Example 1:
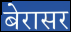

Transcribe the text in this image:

बेरासर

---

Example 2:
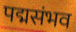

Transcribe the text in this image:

पद्मसंभव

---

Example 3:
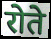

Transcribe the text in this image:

रोते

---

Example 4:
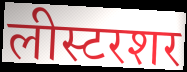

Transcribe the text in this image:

लीस्टरशर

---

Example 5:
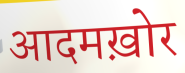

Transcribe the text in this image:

आदमख़ोर